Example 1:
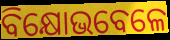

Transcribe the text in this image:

ବିକ୍ଷୋଭବେଳେ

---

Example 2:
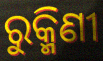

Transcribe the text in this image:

ରୁକ୍ମିଣୀ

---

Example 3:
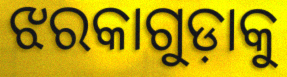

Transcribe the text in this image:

ଝରକାଗୁଡ଼ାକୁ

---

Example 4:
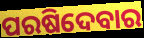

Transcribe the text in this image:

ପରଷିଦେବାର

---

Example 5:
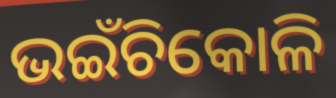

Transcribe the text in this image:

ଭଇଁଚିକୋଳି